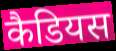
कैडियस